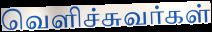
வெளிச்சுவர்கள்